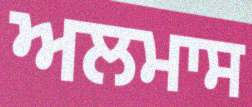
ਅਲਮਾਸ